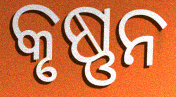
କୃଷ୍ଣନ